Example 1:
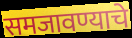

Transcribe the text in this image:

समजावण्याचे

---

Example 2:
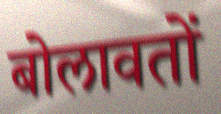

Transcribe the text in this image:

बोलावतों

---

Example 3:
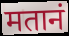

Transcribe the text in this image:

मतानं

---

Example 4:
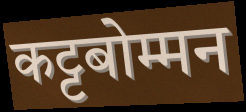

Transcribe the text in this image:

कट्टबोम्मन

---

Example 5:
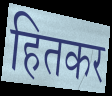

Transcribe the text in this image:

हितकर